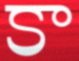
కా